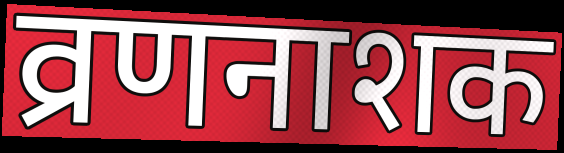
व्रणनाशक